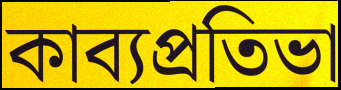
কাব্যপ্রতিভা